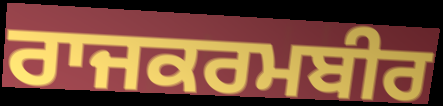
ਰਾਜਕਰਮਬੀਰ